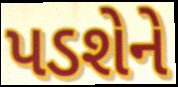
પડશેને